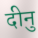
दीनु